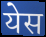
येस